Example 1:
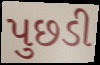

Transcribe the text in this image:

પુછડી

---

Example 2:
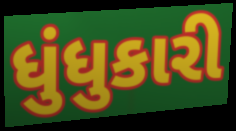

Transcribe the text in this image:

ધુંધુકારી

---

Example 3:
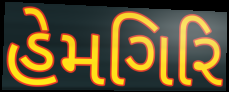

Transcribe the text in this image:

હેમગિરિ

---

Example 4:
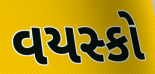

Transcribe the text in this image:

વયસ્કો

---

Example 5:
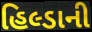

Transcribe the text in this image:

હિલ્ડાની